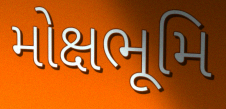
મોક્ષભૂમિ